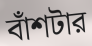
বাঁশটার